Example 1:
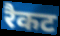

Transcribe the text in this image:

रैकट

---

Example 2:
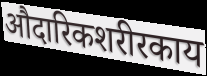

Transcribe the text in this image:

औदारिकशरीरकाय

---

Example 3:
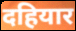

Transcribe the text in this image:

दहियार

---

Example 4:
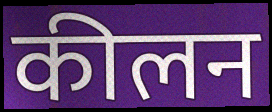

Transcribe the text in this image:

कीलन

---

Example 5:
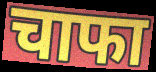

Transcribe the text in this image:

चाफा